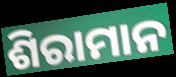
ଶିରାମାନ